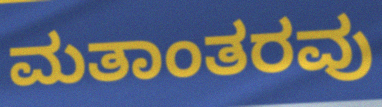
ಮತಾಂತರವು